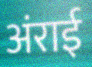
अंराई